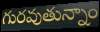
గురవుతున్నాం